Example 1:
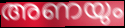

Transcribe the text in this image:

അണയും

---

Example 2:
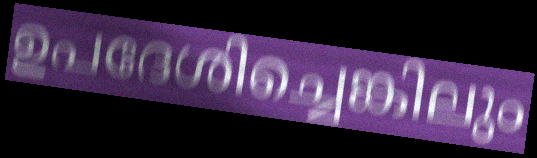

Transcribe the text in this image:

ഉപദേശിച്ചെങ്കിലും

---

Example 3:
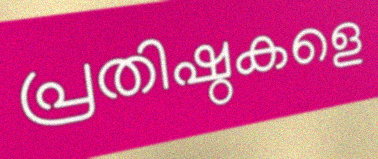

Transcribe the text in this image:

പ്രതിഷ്ഠകളെ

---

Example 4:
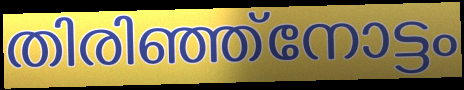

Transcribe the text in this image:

തിരിഞ്ഞ്നോട്ടം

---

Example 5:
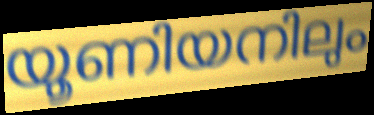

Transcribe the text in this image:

യൂണിയനിലും